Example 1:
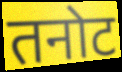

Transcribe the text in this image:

तनोट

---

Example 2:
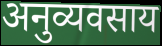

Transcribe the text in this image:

अनुव्यवसाय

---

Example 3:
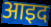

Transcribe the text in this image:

आइद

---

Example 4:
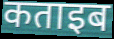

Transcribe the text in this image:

कताइब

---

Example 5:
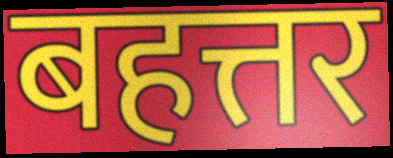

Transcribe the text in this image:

बहत्तर